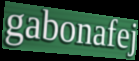
gabonafej